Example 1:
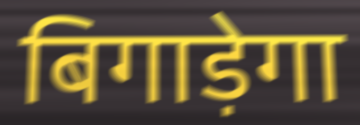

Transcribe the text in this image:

बिगाड़ेगा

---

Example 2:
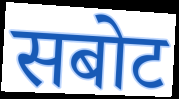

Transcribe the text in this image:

सबोट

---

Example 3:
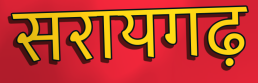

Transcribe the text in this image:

सरायगढ़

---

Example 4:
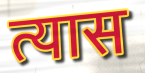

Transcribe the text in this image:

त्यास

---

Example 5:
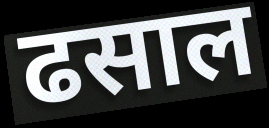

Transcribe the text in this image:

ढसाल